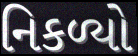
નિકળ્યો